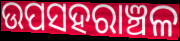
ଉପସହରାଞ୍ଚଳ